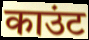
काउंट